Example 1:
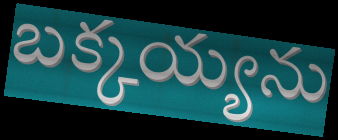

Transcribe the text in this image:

బక్కయ్యను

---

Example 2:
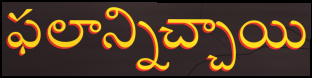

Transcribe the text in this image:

ఫలాన్నిచ్చాయి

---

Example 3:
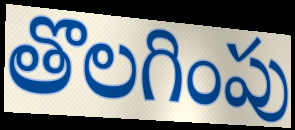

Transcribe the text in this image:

తొలగింపు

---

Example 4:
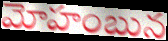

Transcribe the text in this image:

మోహంబున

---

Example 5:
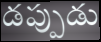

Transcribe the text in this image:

డప్పుడు